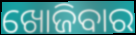
ଖୋଜିବାର